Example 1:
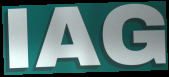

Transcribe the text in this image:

IAG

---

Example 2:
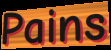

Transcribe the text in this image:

Pains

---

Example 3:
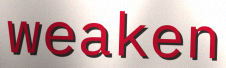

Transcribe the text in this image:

weaken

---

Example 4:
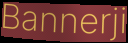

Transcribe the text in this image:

Bannerji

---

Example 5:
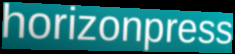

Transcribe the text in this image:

horizonpress